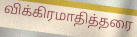
விக்கிரமாதித்தரை